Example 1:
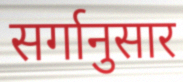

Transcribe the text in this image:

सर्गानुसार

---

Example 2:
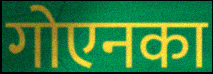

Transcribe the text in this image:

गोएनका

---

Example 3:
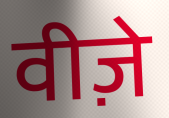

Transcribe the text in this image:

वीज़े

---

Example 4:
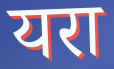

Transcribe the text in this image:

यरा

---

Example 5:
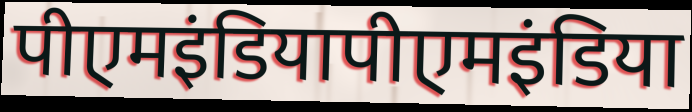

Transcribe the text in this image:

पीएमइंडियापीएमइंडिया